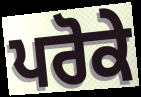
ਪਰੋਕੇ